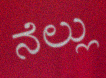
ನೆಲ್ಲು